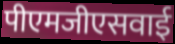
पीएमजीएसवाई